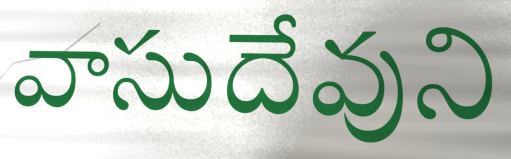
వాసుదేవుని